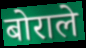
बोराले